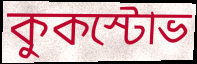
কুকস্টোভ